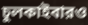
চুলকাইবারও